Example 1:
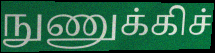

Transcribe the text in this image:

நுணுக்கிச்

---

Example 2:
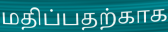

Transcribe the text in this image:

மதிப்பதற்காக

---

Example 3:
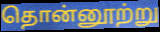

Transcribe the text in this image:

தொன்னூற்று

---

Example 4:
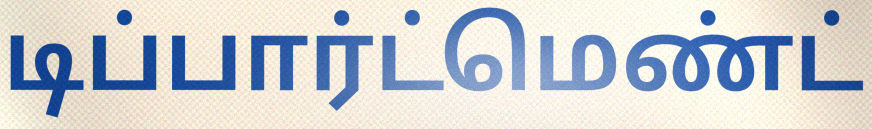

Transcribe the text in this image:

டிப்பார்ட்மெண்ட்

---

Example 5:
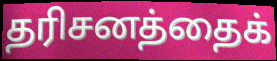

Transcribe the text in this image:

தரிசனத்தைக்